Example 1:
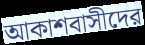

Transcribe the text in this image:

আকাশবাসীদের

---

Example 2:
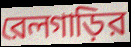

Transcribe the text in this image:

রেলগাড়ির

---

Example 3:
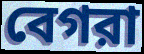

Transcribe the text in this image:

বেগরা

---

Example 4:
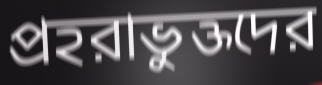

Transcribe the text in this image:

প্রহরাভুক্তদের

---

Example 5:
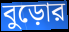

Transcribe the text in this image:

বুড়োর